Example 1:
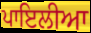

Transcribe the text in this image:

ਪਾਇਲੀਆ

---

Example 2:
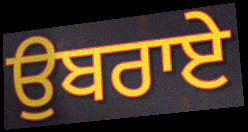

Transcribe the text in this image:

ਉਬਰਾਏ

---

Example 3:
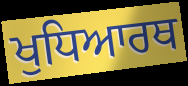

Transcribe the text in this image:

ਖੁਧਿਆਰਥ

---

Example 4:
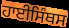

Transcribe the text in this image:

ਹਾਈਸਿੰਥਸ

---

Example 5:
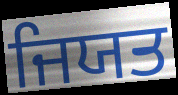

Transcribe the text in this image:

ਜਿਯਤ